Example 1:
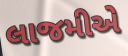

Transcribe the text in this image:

લાજમીએ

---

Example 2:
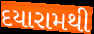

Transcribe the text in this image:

દયારામથી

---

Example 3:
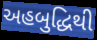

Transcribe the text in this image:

અહબુદ્ધિથી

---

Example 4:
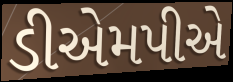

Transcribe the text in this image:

ડીએમપીએ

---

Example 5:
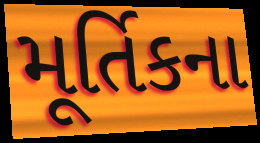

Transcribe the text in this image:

મૂર્તિકના